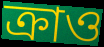
ক্রাও